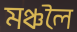
মঞ্চলৈ